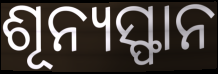
ଶୂନ୍ୟସ୍ଫାନ